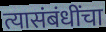
त्यासंबंधींचा